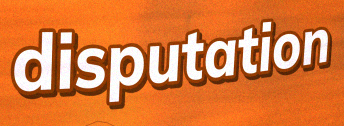
disputation